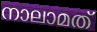
നാലാമത്